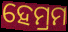
ହେମ୍ରମ